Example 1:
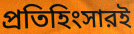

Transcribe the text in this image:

প্রতিহিংসারই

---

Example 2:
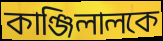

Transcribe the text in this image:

কাঞ্জিলালকে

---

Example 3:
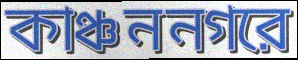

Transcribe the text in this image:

কাঞ্চননগরে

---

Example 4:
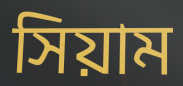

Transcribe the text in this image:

সিয়াম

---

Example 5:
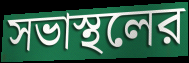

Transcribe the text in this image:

সভাস্থলের